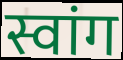
स्‍वांग